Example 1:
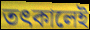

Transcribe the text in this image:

তৎকালেই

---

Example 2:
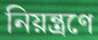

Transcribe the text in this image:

নিয়ন্ত্ৰণে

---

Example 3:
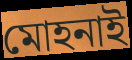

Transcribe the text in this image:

মোহনাই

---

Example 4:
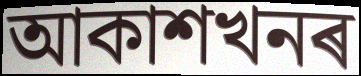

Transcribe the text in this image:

আকাশখনৰ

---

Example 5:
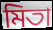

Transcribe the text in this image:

মিতা